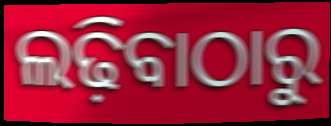
ଲଢ଼ିବାଠାରୁ